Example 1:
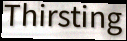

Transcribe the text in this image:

Thirsting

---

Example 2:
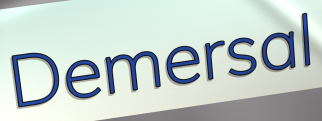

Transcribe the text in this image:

Demersal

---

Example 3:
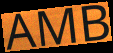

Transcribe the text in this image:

AMB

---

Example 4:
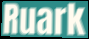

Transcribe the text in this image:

Ruark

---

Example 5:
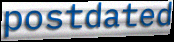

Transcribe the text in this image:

postdated